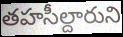
తహసీల్దారుని